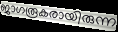
ജാഗരൂകരായിരുന്ന